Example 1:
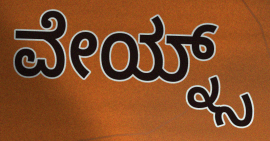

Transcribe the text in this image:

ವೇಯ್ನ್ಸ್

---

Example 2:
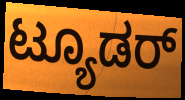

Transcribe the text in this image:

ಟ್ಯೂಡರ್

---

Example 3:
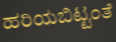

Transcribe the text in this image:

ಹರಿಯಬಿಟ್ಟಂತೆ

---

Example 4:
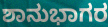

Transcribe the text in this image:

ಶಾನುಭಾಗರ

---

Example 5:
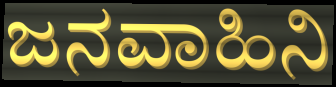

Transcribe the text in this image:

ಜನವಾಹಿನಿ